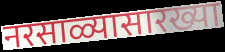
नरसाळ्यासारख्या